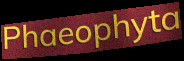
Phaeophyta